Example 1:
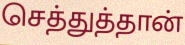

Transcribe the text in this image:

செத்துத்தான்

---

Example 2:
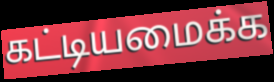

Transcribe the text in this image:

கட்டியமைக்க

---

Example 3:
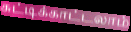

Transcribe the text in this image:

சுட்டிக்காட்டலாம்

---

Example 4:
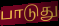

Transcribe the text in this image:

பாடுது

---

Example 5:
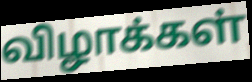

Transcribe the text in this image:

விழாக்கள்